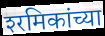
श्रमिकांच्या